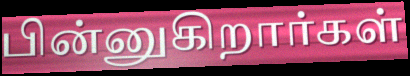
பின்னுகிறார்கள்